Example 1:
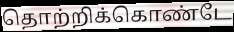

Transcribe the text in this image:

தொற்றிக்கொண்டே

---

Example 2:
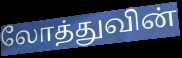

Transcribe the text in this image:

லோத்துவின்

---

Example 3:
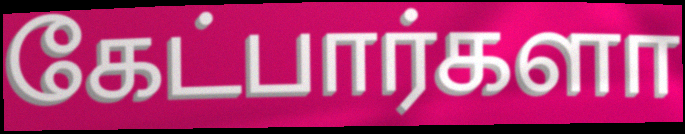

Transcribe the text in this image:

கேட்பார்களா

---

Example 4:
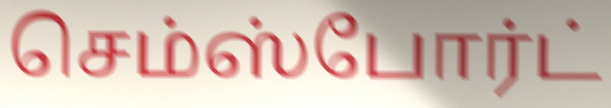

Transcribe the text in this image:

செம்ஸ்போர்ட்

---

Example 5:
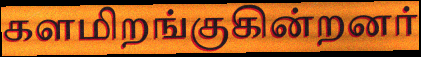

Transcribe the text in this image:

களமிறங்குகின்றனர்